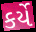
કર્યે